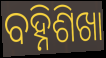
ବହ୍ନିଶିଖା